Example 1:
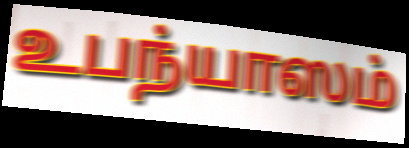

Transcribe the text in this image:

உபந்யாஸம்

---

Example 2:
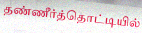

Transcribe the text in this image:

தண்ணீர்த்தொட்டியில்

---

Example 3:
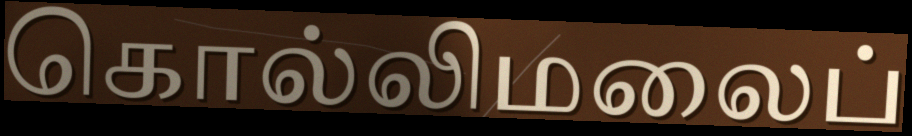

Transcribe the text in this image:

கொல்லிமலைப்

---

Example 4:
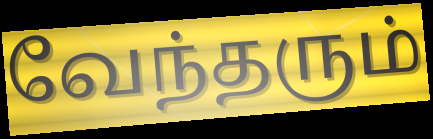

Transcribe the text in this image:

வேந்தரும்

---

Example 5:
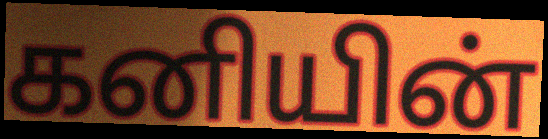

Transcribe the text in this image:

கனியின்